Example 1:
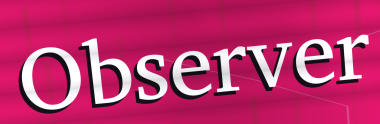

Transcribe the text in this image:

Observer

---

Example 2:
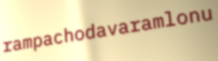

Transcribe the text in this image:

rampachodavaramlonu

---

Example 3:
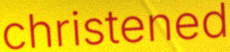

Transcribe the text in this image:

christened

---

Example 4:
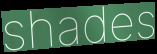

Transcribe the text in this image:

shades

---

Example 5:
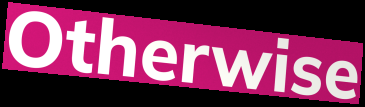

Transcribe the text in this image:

Otherwise